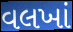
વલખાં